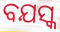
ବଯସ୍କ